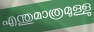
എന്തുമാത്രമുള്ളു